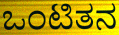
ಒಂಟಿತನ